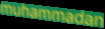
muhammadan